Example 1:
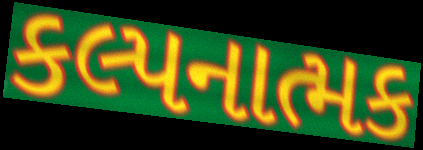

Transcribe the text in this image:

કલ્પનાત્મક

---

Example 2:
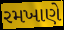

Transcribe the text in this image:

રમખાણે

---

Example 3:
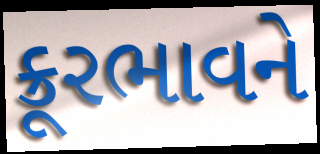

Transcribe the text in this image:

ક્રૂરભાવને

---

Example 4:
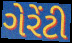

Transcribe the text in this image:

ગેરેંટી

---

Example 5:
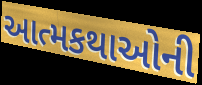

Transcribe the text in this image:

આત્મકથાઓની